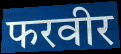
फरवीर